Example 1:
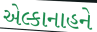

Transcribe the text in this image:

એલ્કાનાહને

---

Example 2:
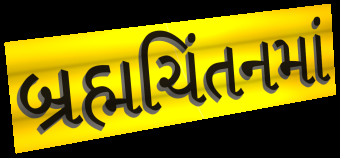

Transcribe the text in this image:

બ્રહ્મચિંતનમાં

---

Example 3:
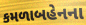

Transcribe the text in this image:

કમળાબહેનના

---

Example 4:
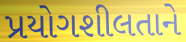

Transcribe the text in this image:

પ્રયોગશીલતાને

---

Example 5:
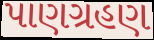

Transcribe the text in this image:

પાણગ્રહણ